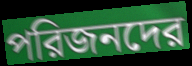
পরিজনদের